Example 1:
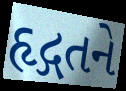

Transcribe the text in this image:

હૃદ્ગતને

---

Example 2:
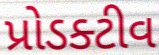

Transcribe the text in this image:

પ્રોડક્ટીવ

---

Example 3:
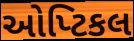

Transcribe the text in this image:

ઓપ્ટિકલ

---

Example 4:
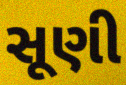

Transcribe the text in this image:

સૂણી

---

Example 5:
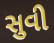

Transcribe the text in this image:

સુવી